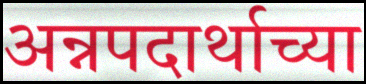
अन्नपदार्थाच्या